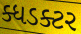
ક્ધડક્ટર